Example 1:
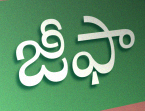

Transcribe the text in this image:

జీఫా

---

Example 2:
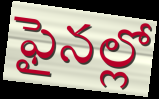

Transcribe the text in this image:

ఫైనల్లో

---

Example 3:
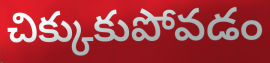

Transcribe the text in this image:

చిక్కుకుపోవడం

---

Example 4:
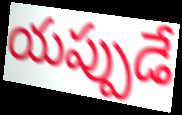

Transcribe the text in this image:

యప్పుడే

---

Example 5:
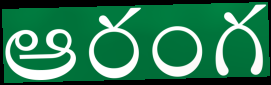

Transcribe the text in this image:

ఆరంగ